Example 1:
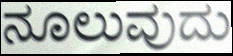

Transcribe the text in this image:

ನೂಲುವುದು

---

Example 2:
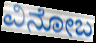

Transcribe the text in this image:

ವಿನೋಬ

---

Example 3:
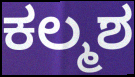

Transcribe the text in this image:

ಕಲ್ಮಶ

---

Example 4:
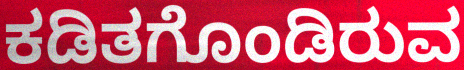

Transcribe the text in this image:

ಕಡಿತಗೊಂಡಿರುವ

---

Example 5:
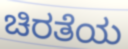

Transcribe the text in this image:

ಚಿರತೆಯ